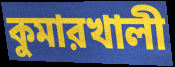
কুমারখালী